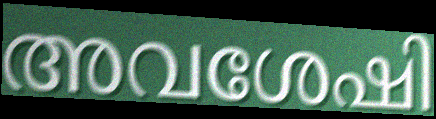
അവശേഷി